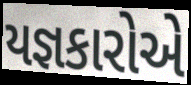
યજ્ઞકારોએ